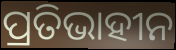
ପ୍ରତିଭାହୀନ